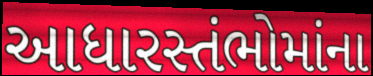
આધારસ્તંભોમાંના